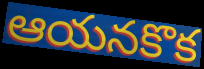
ఆయనకొక